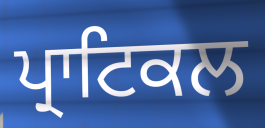
ਪ੍ਰਾਟਿਕਲ